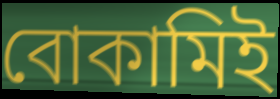
বোকামিই